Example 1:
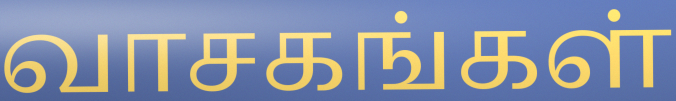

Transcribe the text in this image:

வாசகங்கள்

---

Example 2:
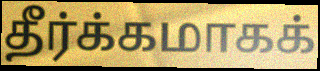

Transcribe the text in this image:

தீர்க்கமாகக்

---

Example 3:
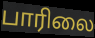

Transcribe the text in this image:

பாரிலை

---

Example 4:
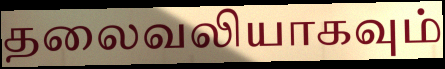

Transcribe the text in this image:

தலைவலியாகவும்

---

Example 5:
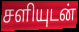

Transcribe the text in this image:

சளியுடன்